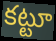
కట్టూ